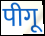
पीगू